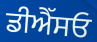
ਡੀਐੱਸਓ